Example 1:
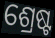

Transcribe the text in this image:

ଶ୍ରେଷ୍ଟ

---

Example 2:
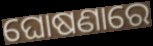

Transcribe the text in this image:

ଘୋଷଣାରେ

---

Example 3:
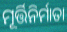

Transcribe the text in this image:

ମୂର୍ତ୍ତିନିର୍ମାତା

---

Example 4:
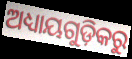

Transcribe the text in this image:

ଅଧ୍ୟାୟଗୁଡ଼ିକରୁ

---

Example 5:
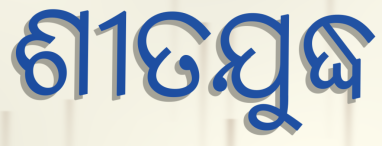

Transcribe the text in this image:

ଶୀତଯୁଦ୍ଧ